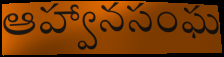
ఆహ్వానసంఘ